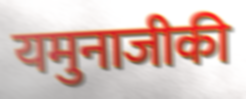
यमुनाजीकी